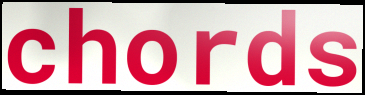
chords